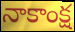
నాకాంక్ష